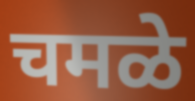
चमळे